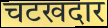
चटखदार